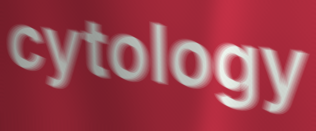
cytology